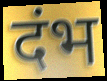
दंभ